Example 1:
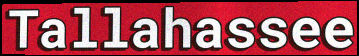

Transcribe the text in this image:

Tallahassee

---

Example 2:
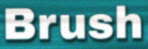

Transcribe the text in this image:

Brush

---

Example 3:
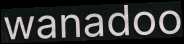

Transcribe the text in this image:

wanadoo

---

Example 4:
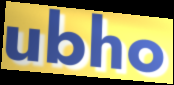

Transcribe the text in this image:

ubho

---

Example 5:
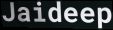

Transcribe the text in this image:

Jaideep